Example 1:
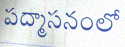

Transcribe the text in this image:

పద్మాసనంలో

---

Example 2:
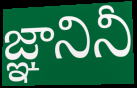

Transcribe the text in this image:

జ్ఞానినీ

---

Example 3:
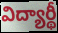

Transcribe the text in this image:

విద్యార్థీ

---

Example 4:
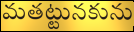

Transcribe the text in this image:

మతట్టునకును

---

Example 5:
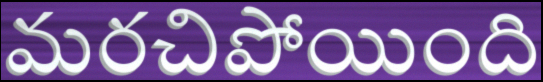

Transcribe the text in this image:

మరచిపోయింది